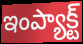
ఇంప్యాక్ట్